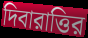
দিবারাত্তির